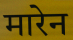
मारेन